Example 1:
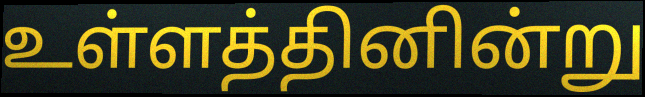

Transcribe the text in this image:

உள்ளத்தினின்று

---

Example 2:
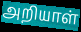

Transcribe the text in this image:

அறியாள்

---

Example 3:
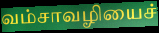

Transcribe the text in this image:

வம்சாவழியைச்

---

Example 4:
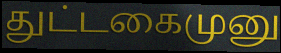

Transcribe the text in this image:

துட்டகைமுனு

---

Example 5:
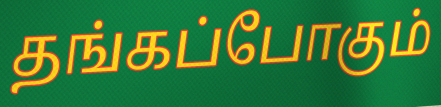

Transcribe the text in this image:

தங்கப்போகும்